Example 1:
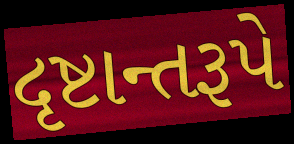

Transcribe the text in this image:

દૃષ્ટાન્તરૂપે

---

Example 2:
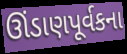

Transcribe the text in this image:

ઊંડાણપૂર્વકના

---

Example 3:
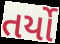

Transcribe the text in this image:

તર્યો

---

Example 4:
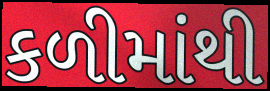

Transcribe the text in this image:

કળીમાંથી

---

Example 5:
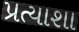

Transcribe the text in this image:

પ્રત્યાશા